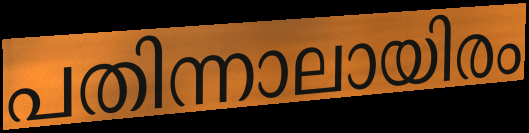
പതിന്നാലായിരം